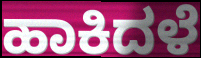
ಹಾಕಿದಳೆ